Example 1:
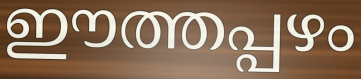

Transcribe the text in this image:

ഈത്തപ്പഴം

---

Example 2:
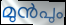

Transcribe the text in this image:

മുൻപും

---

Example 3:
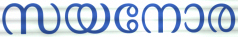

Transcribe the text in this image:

സയനോര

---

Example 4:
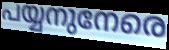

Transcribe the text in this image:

പയ്യനുനേരെ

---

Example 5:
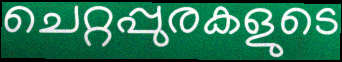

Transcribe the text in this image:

ചെറ്റപ്പുരകളുടെ